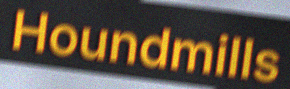
Houndmills